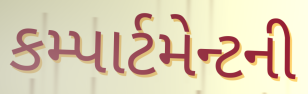
કમ્પાર્ટમેન્ટની